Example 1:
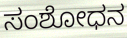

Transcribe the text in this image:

ಸಂಶೋಧನ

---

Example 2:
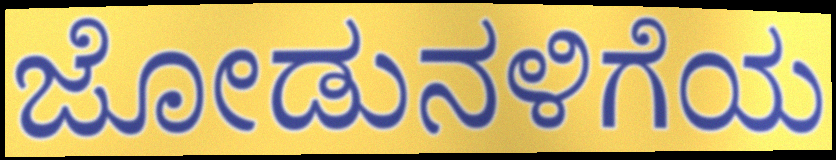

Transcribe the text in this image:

ಜೋಡುನಳಿಗೆಯ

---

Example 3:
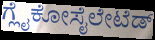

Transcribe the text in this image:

ಗ್ಲೈಕೋಸೈಲೇಟೆಡ್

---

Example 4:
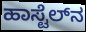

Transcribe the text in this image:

ಹಾಸ್ಟೆಲ್‌ನ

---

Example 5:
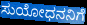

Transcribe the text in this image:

ಸುಯೋಧನನಿಗೆ